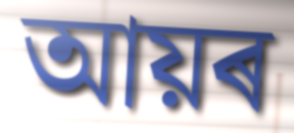
আয়ৰ